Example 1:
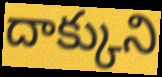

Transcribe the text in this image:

దాక్కుని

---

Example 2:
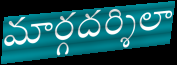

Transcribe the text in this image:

మార్గదర్శిలా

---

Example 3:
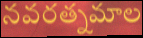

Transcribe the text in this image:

నవరత్నమాల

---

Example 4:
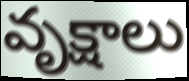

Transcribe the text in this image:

వృక్షాలు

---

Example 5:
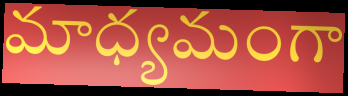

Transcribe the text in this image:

మాధ్యమంగా